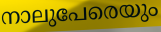
നാലുപേരെയും